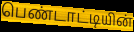
பெண்டாட்டியின்